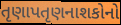
તૃણાપતૃણનાશકોનો